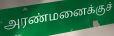
அரண்மனைக்குச்